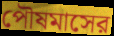
পৌষমাসের